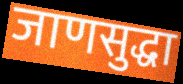
जाणसुद्धा